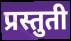
प्रस्तुती